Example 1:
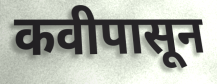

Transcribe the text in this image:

कवीपासून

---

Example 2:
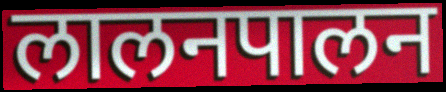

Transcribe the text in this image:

लालनपालन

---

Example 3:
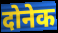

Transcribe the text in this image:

दोनेक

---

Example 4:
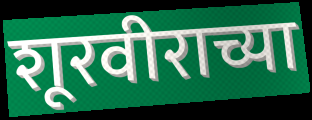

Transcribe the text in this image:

शूरवीराच्या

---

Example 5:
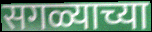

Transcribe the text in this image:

सगळ्याच्या